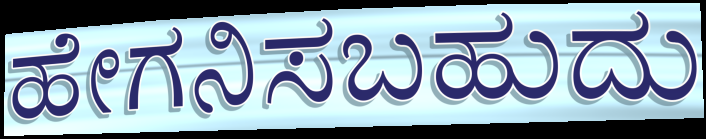
ಹೇಗನಿಸಬಹುದು